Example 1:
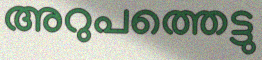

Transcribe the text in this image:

അറുപത്തെട്ടു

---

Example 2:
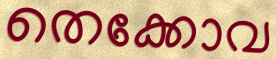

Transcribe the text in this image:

തെക്കോവ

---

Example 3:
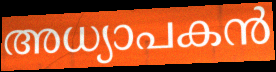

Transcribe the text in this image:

അധ്യാപകൻ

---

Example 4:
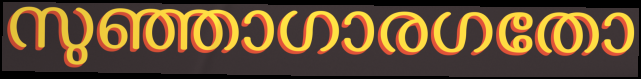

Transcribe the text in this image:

സുഞ്ഞാഗാരഗതോ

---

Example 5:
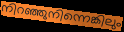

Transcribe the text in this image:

നിറഞ്ഞുനിന്നെങ്കിലും